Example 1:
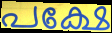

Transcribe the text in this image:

പക്ഷേ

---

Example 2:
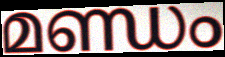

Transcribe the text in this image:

മണ്ഡം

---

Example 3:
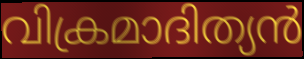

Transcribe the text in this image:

വിക്രമാദിത്യൻ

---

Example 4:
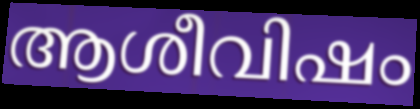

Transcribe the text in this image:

ആശീവിഷം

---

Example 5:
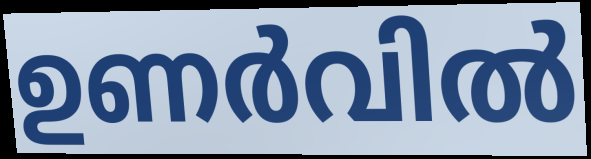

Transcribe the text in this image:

ഉണർവിൽ